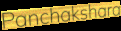
Panchakshara